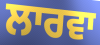
ਲਾਰਵਾ